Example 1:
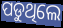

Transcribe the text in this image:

ପଡୁଥିଲେ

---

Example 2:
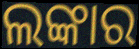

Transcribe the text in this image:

ଲଙ୍କାର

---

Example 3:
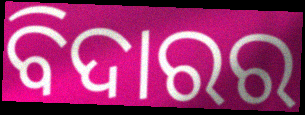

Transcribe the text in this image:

ବିଦାରର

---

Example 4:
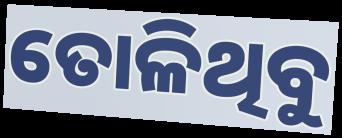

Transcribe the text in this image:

ତୋଳିଥିବୁ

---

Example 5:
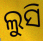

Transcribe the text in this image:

ଲୁସି